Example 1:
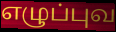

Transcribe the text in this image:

எழுப்புவ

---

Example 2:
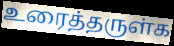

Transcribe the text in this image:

உரைத்தருள்க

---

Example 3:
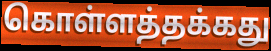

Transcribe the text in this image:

கொள்ளத்தக்கது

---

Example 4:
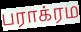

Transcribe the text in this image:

பராக்ரம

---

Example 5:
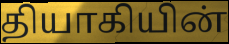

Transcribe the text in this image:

தியாகியின்